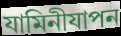
যামিনীযাপন